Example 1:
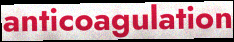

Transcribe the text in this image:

anticoagulation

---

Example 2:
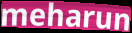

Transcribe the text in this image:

meharun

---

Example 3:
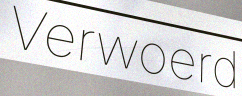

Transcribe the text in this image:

Verwoerd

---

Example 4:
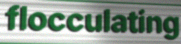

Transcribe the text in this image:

flocculating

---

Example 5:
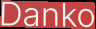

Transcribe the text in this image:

Danko